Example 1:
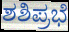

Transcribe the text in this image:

ಶಶಿಪ್ರಭೆ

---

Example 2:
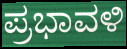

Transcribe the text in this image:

ಪ್ರಭಾವಳಿ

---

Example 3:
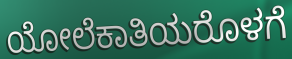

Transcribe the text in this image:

ಯೋಲೆಕಾತಿಯರೊಳಗೆ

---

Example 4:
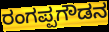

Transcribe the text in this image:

ರಂಗಪ್ಪಗೌಡನ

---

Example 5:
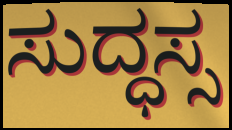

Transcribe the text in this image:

ಸುದ್ಧಸ್ಸ